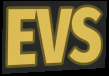
EVS